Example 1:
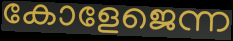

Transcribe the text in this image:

കോളേജെന്ന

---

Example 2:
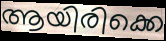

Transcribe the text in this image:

ആയിരിക്കെ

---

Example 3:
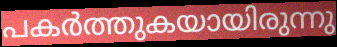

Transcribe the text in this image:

പകർത്തുകയായിരുന്നു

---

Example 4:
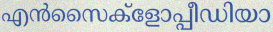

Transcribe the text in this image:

എൻസൈക്ളോപ്പീഡിയാ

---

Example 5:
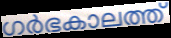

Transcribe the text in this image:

ഗർഭകാലത്ത്